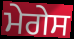
ਮੇਗੇਸ